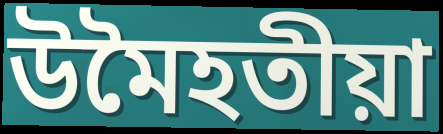
উমৈহতীয়া